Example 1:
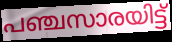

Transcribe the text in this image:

പഞ്ചസാരയിട്ട്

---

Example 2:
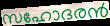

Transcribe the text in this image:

സഹോദരൻ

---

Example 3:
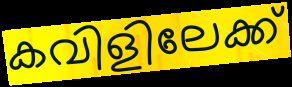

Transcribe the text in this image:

കവിളിലേക്ക്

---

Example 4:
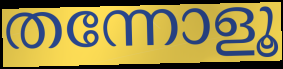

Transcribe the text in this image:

തന്നോളൂ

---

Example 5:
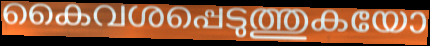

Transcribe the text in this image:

കൈവശപ്പെടുത്തുകയോ